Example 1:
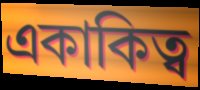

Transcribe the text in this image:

একাকিত্ব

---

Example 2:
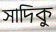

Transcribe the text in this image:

সাদিকু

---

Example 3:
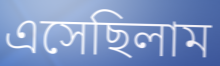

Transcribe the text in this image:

এসেছিলাম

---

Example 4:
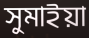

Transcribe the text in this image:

সুমাইয়া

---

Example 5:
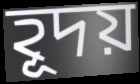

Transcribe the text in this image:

হূদয়